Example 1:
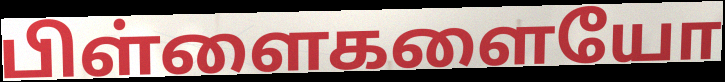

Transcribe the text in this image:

பிள்ளைகளையோ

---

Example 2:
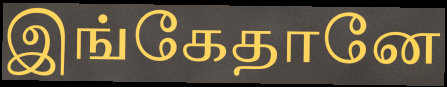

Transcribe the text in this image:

இங்கேதானே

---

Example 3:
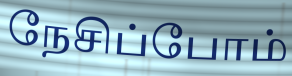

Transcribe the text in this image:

நேசிப்போம்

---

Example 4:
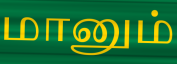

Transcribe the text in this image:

மானும்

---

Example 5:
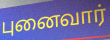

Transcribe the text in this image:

புனைவார்